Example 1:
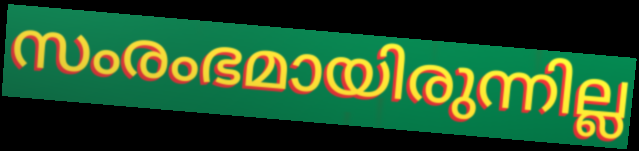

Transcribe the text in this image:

സംരംഭമായിരുന്നില്ല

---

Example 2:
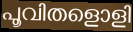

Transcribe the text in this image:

പൂവിതളൊളി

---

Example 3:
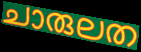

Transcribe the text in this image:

ചാരുലത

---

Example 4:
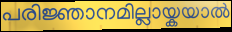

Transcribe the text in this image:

പരിജ്ഞാനമില്ലായ്കയാൽ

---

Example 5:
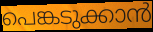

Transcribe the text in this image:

പെങ്കടുക്കാൻ